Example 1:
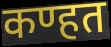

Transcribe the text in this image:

कण्हत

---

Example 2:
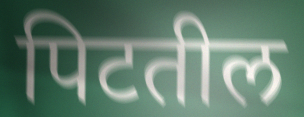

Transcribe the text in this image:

पिटतील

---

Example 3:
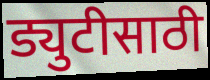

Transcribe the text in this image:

ड्युटीसाठी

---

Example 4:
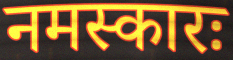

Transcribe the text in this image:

नमस्कारः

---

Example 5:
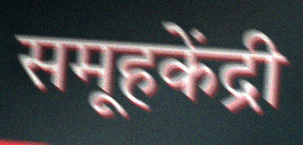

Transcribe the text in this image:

समूहकेंद्री